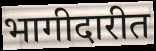
भागीदारीत